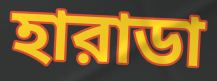
হারাডা